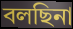
বলছিনা